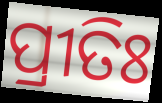
ପ୍ରୀତିଃ